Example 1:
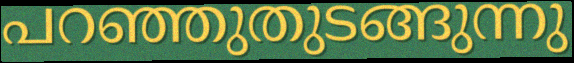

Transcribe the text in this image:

പറഞ്ഞുതുടങ്ങുന്നു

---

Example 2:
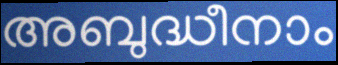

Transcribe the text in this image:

അബുദ്ധീനാം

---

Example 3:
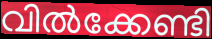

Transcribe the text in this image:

വിൽക്കേണ്ടി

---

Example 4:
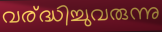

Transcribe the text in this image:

വര്ദ്ധിച്ചുവരുന്നു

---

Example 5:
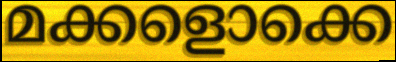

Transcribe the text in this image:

മക്കളൊക്കെ